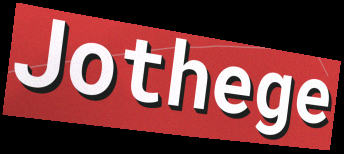
Jothege